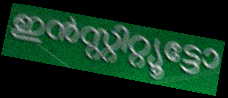
ഇൻസ്റ്റിറ്റ്യൂട്ടോ